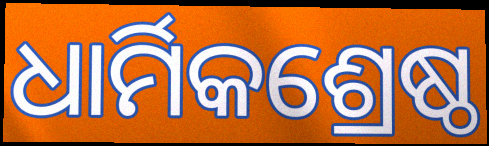
ଧାର୍ମିକଶ୍ରେଷ୍ଠ